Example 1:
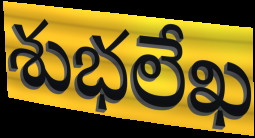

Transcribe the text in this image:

శుభలేఖ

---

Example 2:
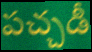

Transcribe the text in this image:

పచ్చడీ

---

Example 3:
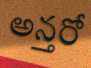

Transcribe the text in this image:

అన్తరో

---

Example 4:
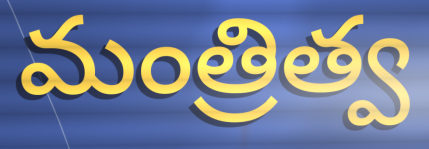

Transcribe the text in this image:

మంత్రిత్వ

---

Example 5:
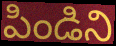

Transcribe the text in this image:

పిండిని